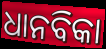
ଧାନବିକା